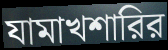
যামাখশারির